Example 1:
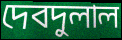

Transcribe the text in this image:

দেবদুলাল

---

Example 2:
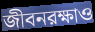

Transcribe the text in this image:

জীবনরক্ষাও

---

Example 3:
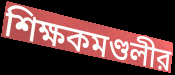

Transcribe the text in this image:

শিক্ষকমণ্ডলীর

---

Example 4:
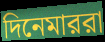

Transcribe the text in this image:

দিনেমাররা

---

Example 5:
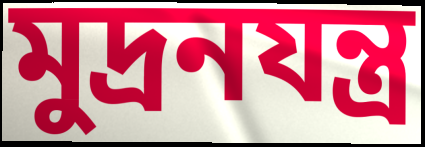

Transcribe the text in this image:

মুদ্রনযন্ত্র